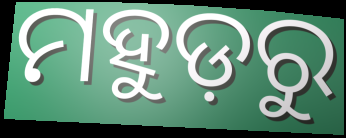
ମହୁଡ଼ରୁ